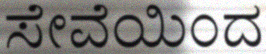
ಸೇವೆಯಿಂದ